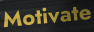
Motivate